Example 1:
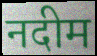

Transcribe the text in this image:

नदीम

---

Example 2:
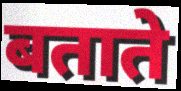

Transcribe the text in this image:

बताते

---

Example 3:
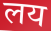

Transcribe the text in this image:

लय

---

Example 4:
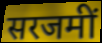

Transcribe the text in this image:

सरजमीं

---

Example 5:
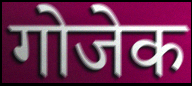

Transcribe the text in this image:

गोजेक